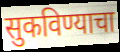
सुकविण्याचा